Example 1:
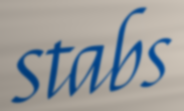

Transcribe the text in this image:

stabs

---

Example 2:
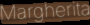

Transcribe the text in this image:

Margherita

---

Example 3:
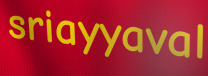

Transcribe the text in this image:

sriayyaval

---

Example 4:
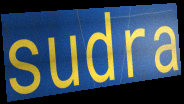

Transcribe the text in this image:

sudra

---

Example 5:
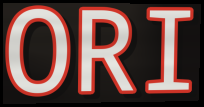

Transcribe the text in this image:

ORI